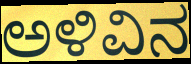
ಅಳಿವಿನ